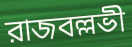
রাজবল্লভী